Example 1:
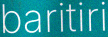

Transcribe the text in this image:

baritiri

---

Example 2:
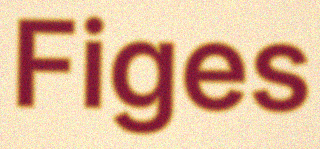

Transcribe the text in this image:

Figes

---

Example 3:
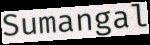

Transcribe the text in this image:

Sumangal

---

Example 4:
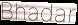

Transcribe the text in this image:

Bhadar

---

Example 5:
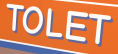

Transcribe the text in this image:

TOLET